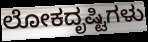
ಲೋಕದೃಷ್ಟಿಗಳು